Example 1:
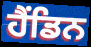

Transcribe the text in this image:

ਹੈਂਡਿਨ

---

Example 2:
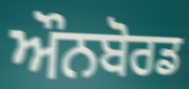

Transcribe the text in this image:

ਔਨਬੋਰਡ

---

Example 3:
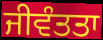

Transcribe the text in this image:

ਜੀਵੰਤਤਾ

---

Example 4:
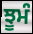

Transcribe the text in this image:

ਝੂਮੰ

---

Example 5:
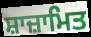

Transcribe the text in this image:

ਸ਼ਾਜ਼ਾਮਿਤ